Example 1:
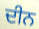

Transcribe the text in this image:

ਦੀਨ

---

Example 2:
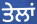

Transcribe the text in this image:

ਤੇਲਾਂ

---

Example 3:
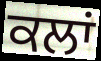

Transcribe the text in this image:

ਕਲਾਂ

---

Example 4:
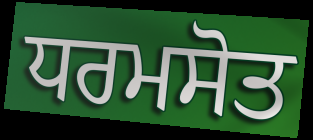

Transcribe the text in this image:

ਧਰਮਸੋਤ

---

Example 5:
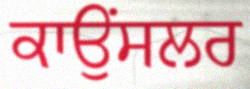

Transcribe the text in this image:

ਕਾਉਂਸਲਰ